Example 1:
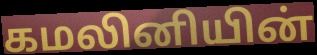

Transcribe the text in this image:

கமலினியின்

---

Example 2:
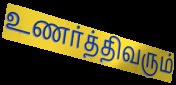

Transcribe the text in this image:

உணர்த்திவரும்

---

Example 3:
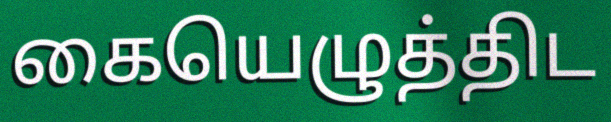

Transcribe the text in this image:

கையெழுத்திட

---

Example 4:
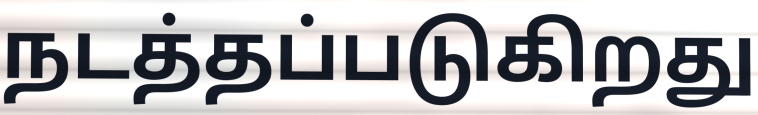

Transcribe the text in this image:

நடத்தப்படுகிறது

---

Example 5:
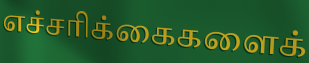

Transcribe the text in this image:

எச்சரிக்கைகளைக்